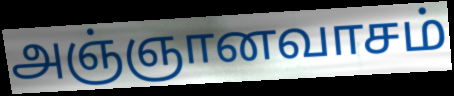
அஞ்ஞானவாசம்